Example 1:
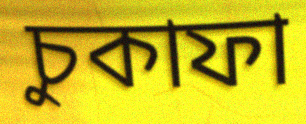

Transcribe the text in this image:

চুকাফা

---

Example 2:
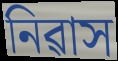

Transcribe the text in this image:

নিৱাস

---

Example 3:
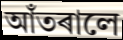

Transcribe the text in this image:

আঁতৰালে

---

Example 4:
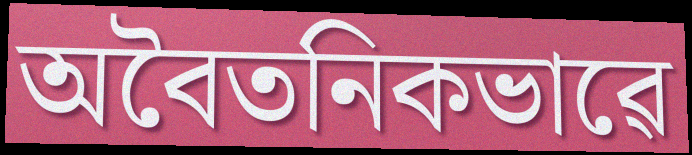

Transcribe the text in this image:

অবৈতনিকভাৱে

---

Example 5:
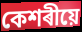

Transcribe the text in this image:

কেশৰীয়ে